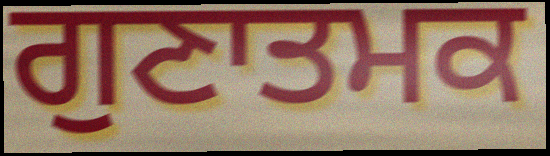
ਗੁਣਾਤਮਕ